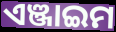
ଏଞ୍ଜାଇମ